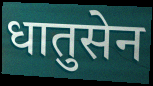
धातुसेन